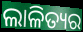
ଲାଳିତ୍ୟର